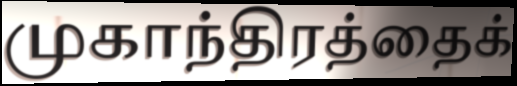
முகாந்திரத்தைக்